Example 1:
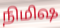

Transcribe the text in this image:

நிமிஷ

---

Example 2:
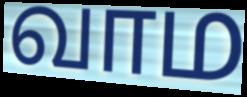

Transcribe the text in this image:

வாம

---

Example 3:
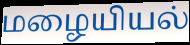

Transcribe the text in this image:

மழையியல்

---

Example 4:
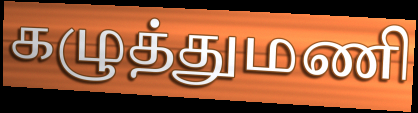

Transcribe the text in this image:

கழுத்துமணி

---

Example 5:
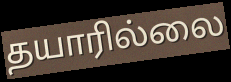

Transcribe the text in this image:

தயாரில்லை